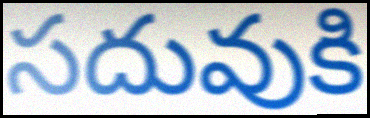
సదువుకి